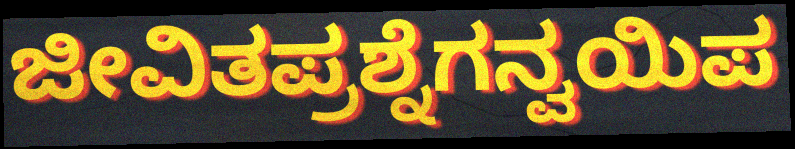
ಜೀವಿತಪ್ರಶ್ನೆಗನ್ವಯಿಪ